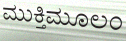
ಮುಕ್ತಿಮೂಲಂ